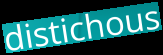
distichous